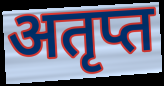
अतृप्त